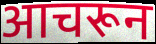
आचरून